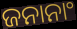
ଜନାନାଂ